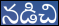
నడిచి